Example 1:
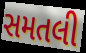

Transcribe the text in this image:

સમતલી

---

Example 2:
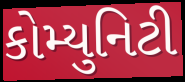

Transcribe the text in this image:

કોમ્યુનિટી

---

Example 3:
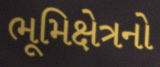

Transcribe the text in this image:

ભૂમિક્ષેત્રનો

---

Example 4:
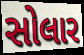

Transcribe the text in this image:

સોલાર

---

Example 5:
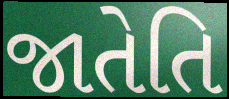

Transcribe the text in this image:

જાતેતિ